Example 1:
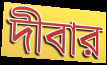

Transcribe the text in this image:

দীবার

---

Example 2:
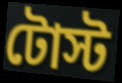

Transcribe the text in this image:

টোস্ট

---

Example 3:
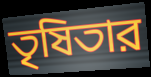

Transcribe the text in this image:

তৃষিতার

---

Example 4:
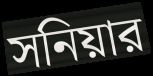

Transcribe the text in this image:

সনিয়ার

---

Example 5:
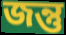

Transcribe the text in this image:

জন্তু